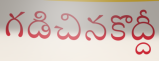
గడిచినకొద్దీ